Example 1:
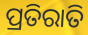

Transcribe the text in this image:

ପ୍ରତିରାତି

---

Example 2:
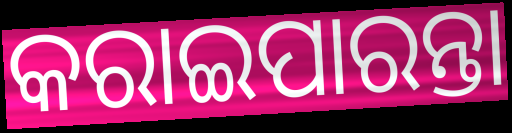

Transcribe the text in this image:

କରାଇପାରନ୍ତା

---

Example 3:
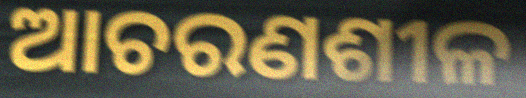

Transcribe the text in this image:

ଆଚରଣଶୀଳ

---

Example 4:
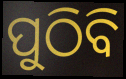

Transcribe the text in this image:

ପୁଠିବି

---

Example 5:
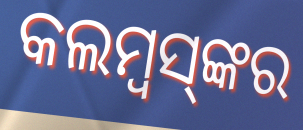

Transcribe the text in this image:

କଲମ୍ୱସ୍‌ଙ୍କର